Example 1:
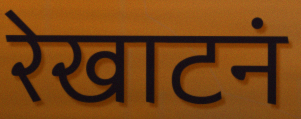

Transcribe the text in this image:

रेखाटनं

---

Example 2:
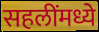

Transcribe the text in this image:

सहलींमध्ये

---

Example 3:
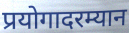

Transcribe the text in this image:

प्रयोगादरम्यान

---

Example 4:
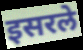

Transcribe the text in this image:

इसरले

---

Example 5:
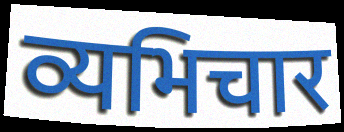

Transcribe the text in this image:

व्यभिचार